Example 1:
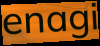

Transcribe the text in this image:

enagi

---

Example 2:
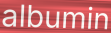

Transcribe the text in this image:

albumin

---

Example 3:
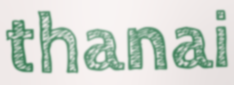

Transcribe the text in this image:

thanai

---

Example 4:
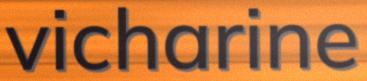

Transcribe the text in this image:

vicharine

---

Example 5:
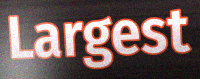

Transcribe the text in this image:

Largest